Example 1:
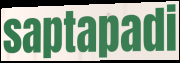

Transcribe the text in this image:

saptapadi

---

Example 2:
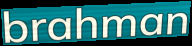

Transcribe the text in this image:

brahman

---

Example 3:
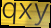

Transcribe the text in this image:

qxy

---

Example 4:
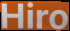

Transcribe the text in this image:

Hiro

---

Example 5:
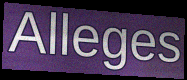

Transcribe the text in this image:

Alleges